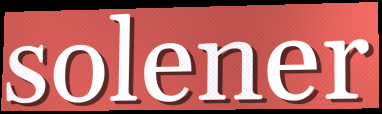
solener